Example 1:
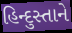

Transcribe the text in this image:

હિન્દુસ્તાને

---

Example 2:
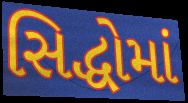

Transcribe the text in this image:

સિદ્ધોમાં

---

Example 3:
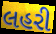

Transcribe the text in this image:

લહરી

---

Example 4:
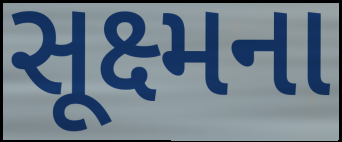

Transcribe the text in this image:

સૂક્ષ્મના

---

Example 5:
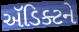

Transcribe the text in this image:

ઍડિક્ટને